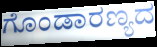
ಗೊಂಡಾರಣ್ಯದ